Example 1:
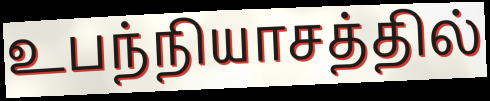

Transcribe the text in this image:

உபந்நியாசத்தில்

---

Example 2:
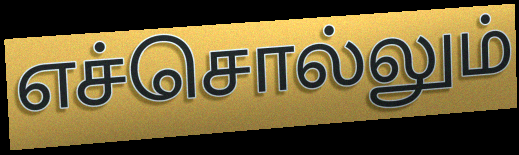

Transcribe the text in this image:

எச்சொல்லும்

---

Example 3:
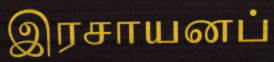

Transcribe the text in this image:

இரசாயனப்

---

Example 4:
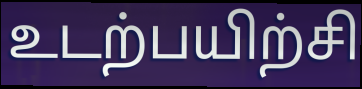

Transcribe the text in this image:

உடற்பயிற்சி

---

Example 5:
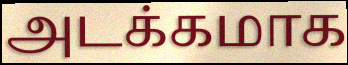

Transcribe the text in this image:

அடக்கமாக